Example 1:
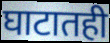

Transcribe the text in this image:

घाटातही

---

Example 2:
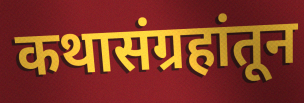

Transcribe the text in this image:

कथासंग्रहांतून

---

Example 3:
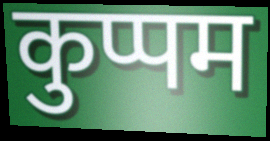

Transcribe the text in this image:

कुप्पम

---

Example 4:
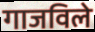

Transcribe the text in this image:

गाजविले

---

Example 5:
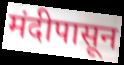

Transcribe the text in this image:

मंदीपासून